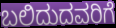
ಬಲಿದುದವರಿಗೆ